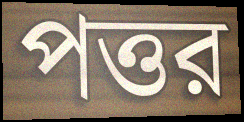
পত্তর